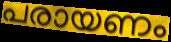
പരായണം